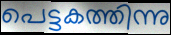
പെട്ടകത്തിന്നു